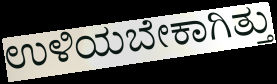
ಉಳಿಯಬೇಕಾಗಿತ್ತು